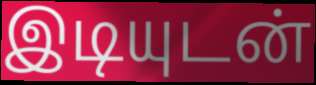
இடியுடன்